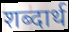
शब्दार्थ